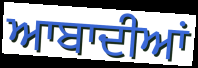
ਆਬਾਦੀਆਂ